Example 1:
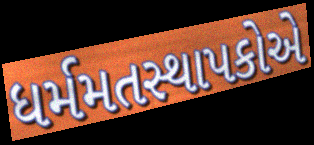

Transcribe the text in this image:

ધર્મમતસ્થાપકોએ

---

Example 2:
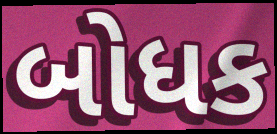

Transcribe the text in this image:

બોધક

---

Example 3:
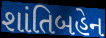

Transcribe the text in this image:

શાંતિબહેન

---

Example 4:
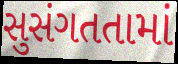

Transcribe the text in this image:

સુસંગતતામાં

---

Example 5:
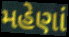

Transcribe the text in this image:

મહેણાં